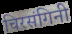
चिरसंगिनी